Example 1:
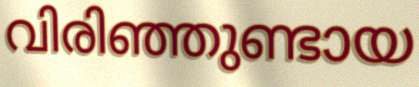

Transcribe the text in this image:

വിരിഞ്ഞുണ്ടായ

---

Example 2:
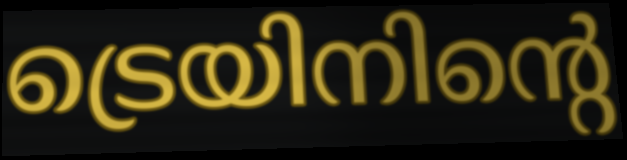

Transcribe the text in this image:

ട്രെയിനിന്റെ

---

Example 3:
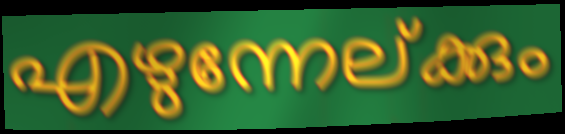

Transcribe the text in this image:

എഴുന്നേല്ക്കും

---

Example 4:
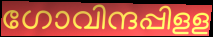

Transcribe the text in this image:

ഗോവിന്ദപ്പിളള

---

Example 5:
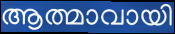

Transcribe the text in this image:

ആത്മാവായി